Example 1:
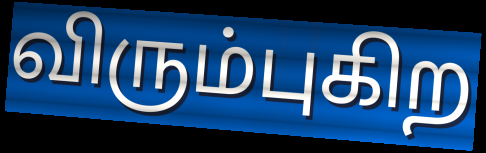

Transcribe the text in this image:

விரும்புகிற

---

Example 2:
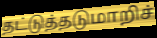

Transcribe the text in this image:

தட்டுத்தடுமாறிச்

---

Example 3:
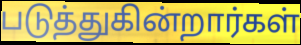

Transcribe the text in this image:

படுத்துகின்றார்கள்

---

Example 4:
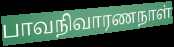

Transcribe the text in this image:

பாவநிவாரணநாள்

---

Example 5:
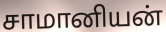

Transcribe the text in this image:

சாமானியன்